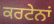
ਕਰਟੇਨਾਂ